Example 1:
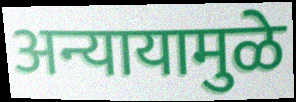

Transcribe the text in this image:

अन्यायामुळे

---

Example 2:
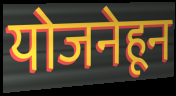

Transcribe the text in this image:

योजनेहून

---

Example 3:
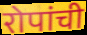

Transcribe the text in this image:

रोपांची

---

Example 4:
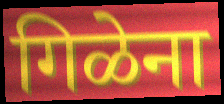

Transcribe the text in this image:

गिळेना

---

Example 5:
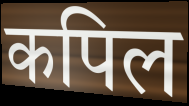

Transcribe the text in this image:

कपिल